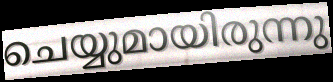
ചെയ്യുമായിരുന്നു